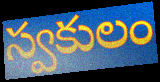
స్వకులం